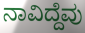
ನಾವಿದ್ದೆವು